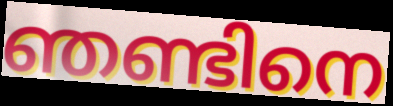
ഞണ്ടിനെ